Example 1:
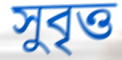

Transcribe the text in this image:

সুবৃত্ত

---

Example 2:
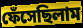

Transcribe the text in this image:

ফেঁসেছিলাম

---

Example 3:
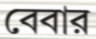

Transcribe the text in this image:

বেবার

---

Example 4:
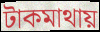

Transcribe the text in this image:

টাকমাথায়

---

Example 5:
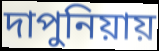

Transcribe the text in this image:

দাপুনিয়ায়